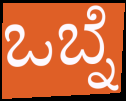
ಒಬ್ನೆ